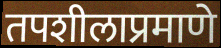
तपशीलाप्रमाणे